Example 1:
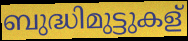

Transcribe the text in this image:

ബുദ്ധിമുട്ടുകള്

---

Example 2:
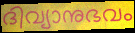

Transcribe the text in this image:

ദിവ്യാനുഭവം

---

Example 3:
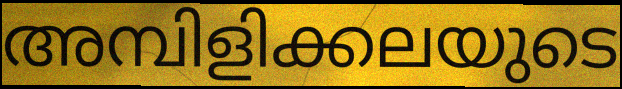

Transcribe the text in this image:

അമ്പിളിക്കലയുടെ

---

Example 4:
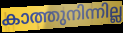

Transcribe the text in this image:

കാത്തുനിന്നില്ല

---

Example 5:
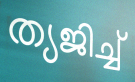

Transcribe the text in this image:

ത്യജിച്ച്